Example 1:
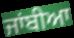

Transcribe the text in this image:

ਜਾਂਬੀਆ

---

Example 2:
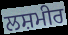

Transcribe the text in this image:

ਲਸ਼ਮੀਰ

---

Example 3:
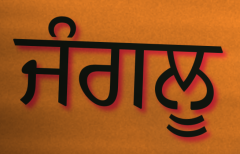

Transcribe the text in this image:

ਜੰਗਲੂ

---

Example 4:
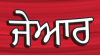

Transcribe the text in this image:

ਜੇਆਰ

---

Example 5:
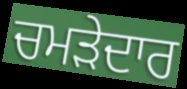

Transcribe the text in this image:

ਚਮੜੇਦਾਰ